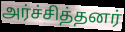
அர்ச்சித்தனர்